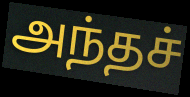
அந்தச்